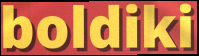
boldiki